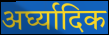
अर्घ्यादिक